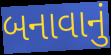
બનાવાનું